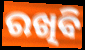
ରଖିବି